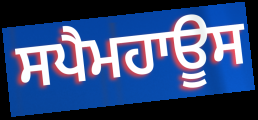
ਸਪੈਮਹਾਊਸ